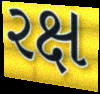
રક્ષ